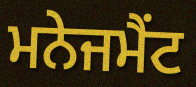
ਮਨੇਜਮੈਂਟ